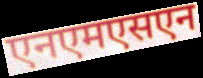
एनएमएसएन